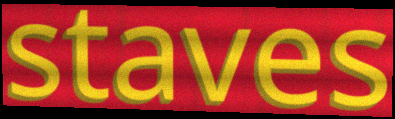
staves